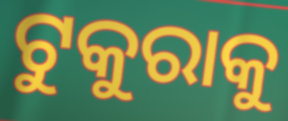
ଟୁକୁରାକୁ